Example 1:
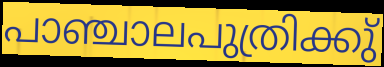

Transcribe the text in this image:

പാഞ്ചാലപുത്രിക്കു്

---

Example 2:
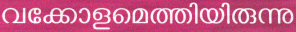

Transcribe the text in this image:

വക്കോളമെത്തിയിരുന്നു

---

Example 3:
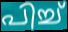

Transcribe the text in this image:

പിച്ച്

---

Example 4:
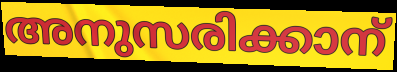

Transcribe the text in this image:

അനുസരിക്കാന്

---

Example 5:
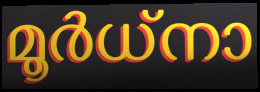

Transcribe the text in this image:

മൂർധ്നാ